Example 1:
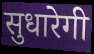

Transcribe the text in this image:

सुधारेगी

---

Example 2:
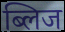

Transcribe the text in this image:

ब्लिज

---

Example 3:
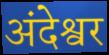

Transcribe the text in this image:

अंदेश्वर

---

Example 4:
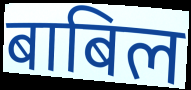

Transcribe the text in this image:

बाबिल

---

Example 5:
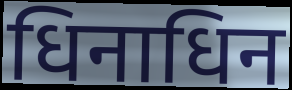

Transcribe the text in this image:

धिनाधिन